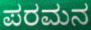
ಪರಮನ